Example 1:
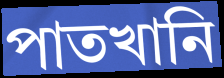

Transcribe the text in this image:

পাতখানি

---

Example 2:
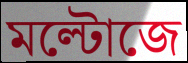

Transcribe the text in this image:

মল্টোজে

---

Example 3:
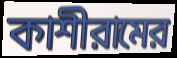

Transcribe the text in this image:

কাশীরামের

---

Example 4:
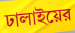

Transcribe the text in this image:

ঢালাইয়ের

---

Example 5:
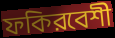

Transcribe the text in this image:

ফকিরবেশী